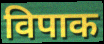
विपाक